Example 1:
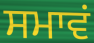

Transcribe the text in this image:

ਸਮਾਵਂ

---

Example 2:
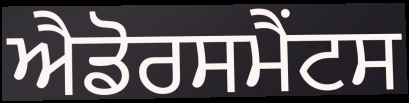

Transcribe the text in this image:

ਐਡੋਰਸਮੈਂਟਸ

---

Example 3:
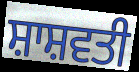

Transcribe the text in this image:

ਸ਼ਾਸ਼ਵਤੀ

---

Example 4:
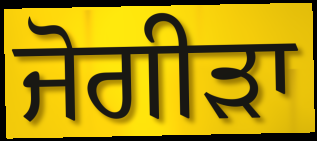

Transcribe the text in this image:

ਜੋਗੀੜਾ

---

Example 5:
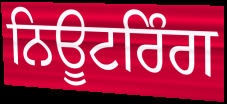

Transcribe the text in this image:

ਨਿਊਟਰਿੰਗ